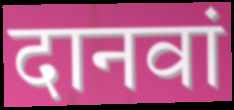
दानवां